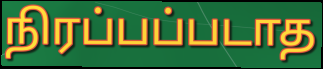
நிரப்பப்படாத